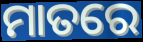
ମାତରେ